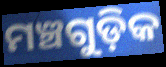
ମଞ୍ଚଗୁଡ଼ିକ